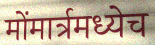
मोंमार्त्रमध्येच